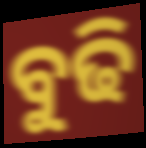
ବୁଢି